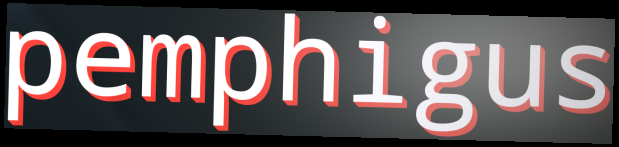
pemphigus